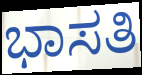
ಭಾಸತಿ